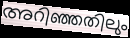
അറിഞ്ഞതിലും